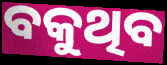
ବକୁଥିବ